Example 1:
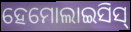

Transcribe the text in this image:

ହେମୋଲାଇସିସ୍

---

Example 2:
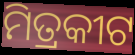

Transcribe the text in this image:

ମିତ୍ରକୀଟ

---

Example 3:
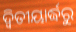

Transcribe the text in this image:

ଦ୍ଵିତୀୟାର୍ଦ୍ଧରୁ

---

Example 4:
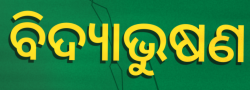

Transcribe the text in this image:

ବିଦ୍ୟାଭୁଷଣ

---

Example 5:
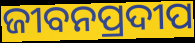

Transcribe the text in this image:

ଜୀବନପ୍ରଦୀପ